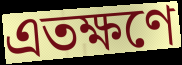
এতক্ষণে